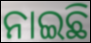
ନାଇଛି